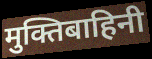
मुक्तिबाहिनी